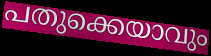
പതുക്കെയാവും